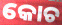
କୋଚ